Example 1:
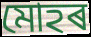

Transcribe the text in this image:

মোহৰ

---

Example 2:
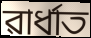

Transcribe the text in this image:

ৱাৰ্ধাত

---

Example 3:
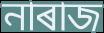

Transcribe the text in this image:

নাৰাজ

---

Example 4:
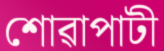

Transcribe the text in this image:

শোৱাপাটী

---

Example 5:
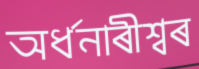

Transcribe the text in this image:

অৰ্ধনাৰীশ্বৰ